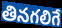
తినగలిగే